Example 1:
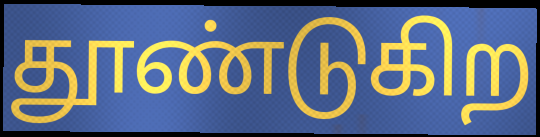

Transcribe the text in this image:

தூண்டுகிற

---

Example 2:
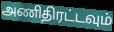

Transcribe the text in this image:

அணிதிரட்டவும்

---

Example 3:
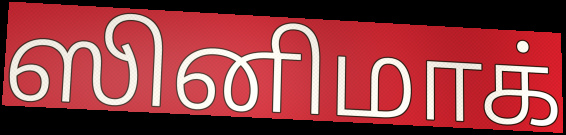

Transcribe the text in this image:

ஸினிமாக்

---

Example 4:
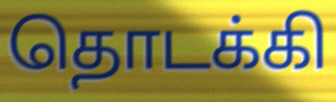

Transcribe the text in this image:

தொடக்கி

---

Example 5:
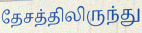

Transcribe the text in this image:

தேசத்திலிருந்து